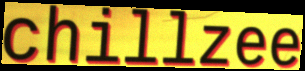
chillzee